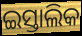
ଇସ୍ତାଲିକ